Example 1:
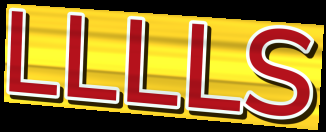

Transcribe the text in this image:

LLLLS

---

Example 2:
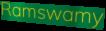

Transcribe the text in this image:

Ramswamy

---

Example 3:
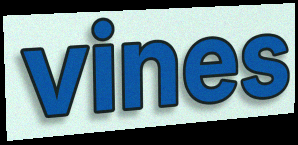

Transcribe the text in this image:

vines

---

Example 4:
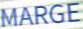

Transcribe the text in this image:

MARGE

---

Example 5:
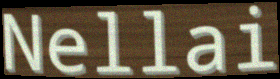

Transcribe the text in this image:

Nellai